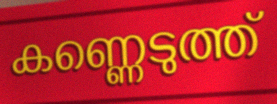
കണ്ണെടുത്ത്